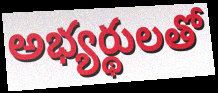
అభ్యర్థులతో